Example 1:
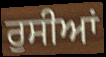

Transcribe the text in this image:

ਰੁਸੀਆਂ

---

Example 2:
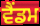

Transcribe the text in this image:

ਵੈਂਡਮ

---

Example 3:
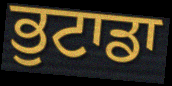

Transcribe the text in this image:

ਭੁਟਾਡਾ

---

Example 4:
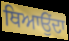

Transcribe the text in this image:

ਥਿਆਉਂਦਾ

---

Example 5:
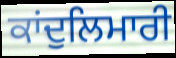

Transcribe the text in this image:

ਕਾਂਦੁਲਿਮਾਰੀ